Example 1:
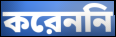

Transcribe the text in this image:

করেননি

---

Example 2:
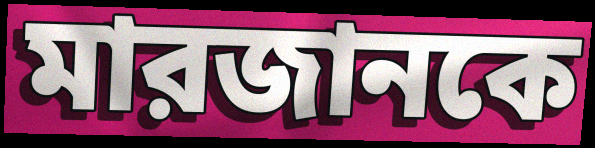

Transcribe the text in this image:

মারজানকে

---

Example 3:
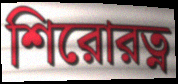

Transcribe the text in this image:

শিরোরত্ন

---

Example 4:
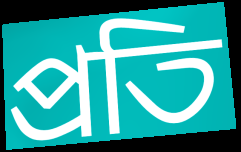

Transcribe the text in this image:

প্রতি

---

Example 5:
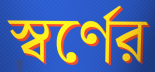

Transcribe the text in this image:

স্বর্ণের